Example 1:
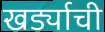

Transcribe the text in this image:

खर्ड्याची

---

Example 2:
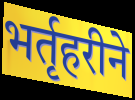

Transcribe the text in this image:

भर्तृहरीने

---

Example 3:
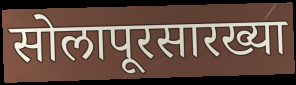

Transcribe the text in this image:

सोलापूरसारख्या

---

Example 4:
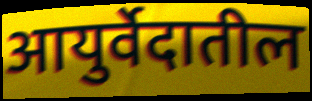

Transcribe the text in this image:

आयुर्वेदातील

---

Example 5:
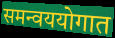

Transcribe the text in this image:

समन्वययोगात